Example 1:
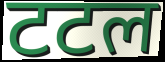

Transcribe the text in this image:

टटल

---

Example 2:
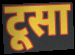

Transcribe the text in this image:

टूसा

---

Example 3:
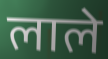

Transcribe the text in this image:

लाले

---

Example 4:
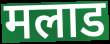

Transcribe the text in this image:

मलाड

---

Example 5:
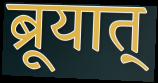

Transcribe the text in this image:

ब्रूयात्